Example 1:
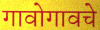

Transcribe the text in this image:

गावोगावचे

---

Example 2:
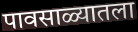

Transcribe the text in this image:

पावसाळ्यातला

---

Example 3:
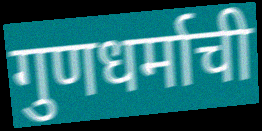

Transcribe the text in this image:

गुणधर्माची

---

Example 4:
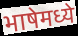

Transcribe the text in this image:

भाषेमध्ये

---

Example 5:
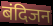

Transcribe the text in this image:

बंदिजन